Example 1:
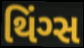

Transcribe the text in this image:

થિંગ્સ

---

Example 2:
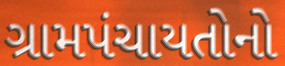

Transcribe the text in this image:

ગ્રામપંચાયતોનો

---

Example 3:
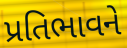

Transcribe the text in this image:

પ્રતિભાવને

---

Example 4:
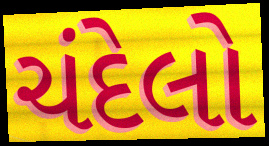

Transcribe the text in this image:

ચંદેલો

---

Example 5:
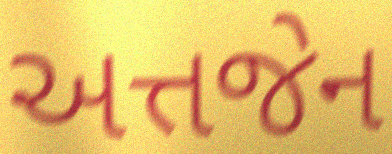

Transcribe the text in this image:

અત્તજેન